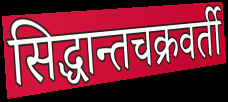
सिद्धान्तचक्रवर्ती